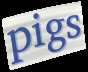
pigs